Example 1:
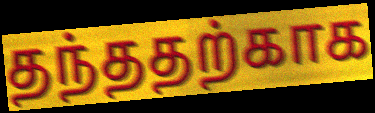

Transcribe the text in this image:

தந்ததற்காக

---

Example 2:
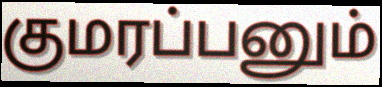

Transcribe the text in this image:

குமரப்பனும்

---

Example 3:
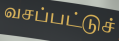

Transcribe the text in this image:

வசப்பட்டுச்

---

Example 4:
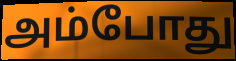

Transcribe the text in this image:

அம்போது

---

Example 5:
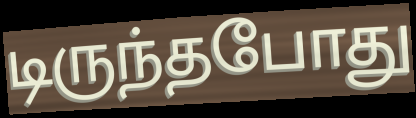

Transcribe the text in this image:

டிருந்தபோது